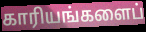
காரியங்களைப்